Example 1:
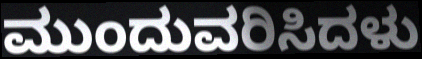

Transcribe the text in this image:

ಮುಂದುವರಿಸಿದಳು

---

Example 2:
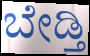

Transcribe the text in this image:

ಬೇಡ್ತಿ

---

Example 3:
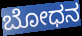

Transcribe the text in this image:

ಬೋಧನ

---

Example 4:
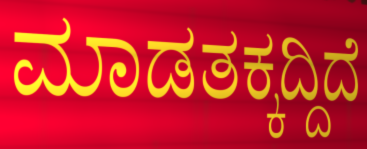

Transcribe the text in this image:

ಮಾಡತಕ್ಕದ್ದಿದೆ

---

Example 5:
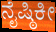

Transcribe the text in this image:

ನೈಷ್ಠಿಕೀ